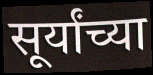
सूर्यांच्या